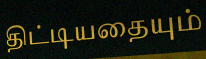
திட்டியதையும்